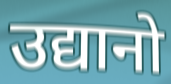
उद्यानो